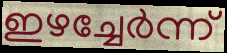
ഇഴച്ചേർന്ന്